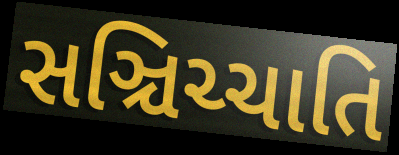
સઞ્ચિચ્ચાતિ